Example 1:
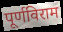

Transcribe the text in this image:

पूर्णविराम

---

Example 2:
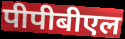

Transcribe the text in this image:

पीपीबीएल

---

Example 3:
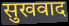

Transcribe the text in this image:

सुखवाद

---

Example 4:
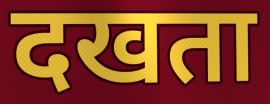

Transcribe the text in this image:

दखता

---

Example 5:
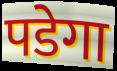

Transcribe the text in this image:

पडेगा